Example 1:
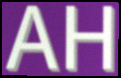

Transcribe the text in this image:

AH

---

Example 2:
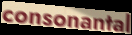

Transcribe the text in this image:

consonantal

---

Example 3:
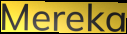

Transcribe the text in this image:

Mereka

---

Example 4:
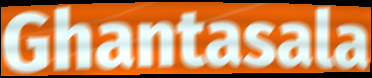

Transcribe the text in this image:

Ghantasala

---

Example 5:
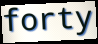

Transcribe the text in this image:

forty